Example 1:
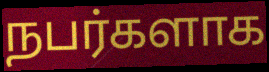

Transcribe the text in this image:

நபர்களாக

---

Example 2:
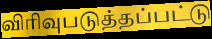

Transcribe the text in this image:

விரிவுபடுத்தப்பட்டு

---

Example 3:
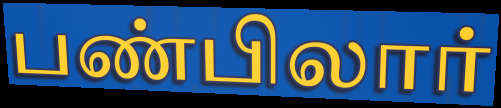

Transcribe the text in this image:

பண்பிலார்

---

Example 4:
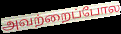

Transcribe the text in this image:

அவற்றைப்போல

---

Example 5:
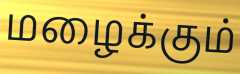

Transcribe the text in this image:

மழைக்கும்